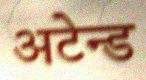
अटेन्ड